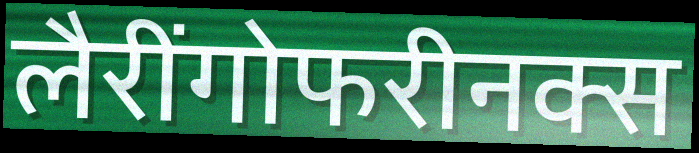
लैरींगोफरीनक्स